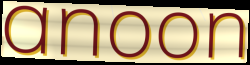
anoon